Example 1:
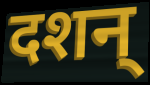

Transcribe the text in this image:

दशन्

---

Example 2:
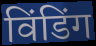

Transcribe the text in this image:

विंडिंग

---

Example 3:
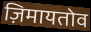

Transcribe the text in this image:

ज़िमायतोव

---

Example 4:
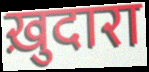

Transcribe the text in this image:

ख़ुदारा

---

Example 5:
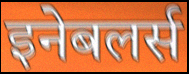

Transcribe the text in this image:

इनेबलर्स